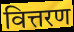
वित्तरण